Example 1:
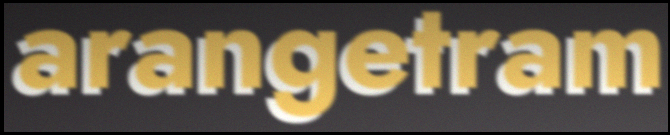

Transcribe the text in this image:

arangetram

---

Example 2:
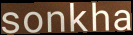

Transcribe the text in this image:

sonkha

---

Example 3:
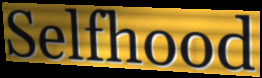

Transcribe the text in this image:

Selfhood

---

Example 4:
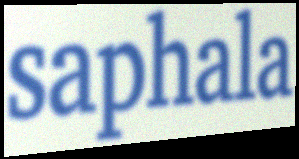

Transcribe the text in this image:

saphala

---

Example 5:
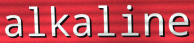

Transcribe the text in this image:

alkaline